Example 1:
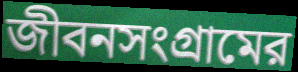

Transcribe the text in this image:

জীবনসংগ্রামের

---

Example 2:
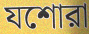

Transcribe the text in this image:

যশোরা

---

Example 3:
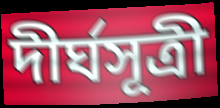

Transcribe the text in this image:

দীর্ঘসূত্রী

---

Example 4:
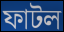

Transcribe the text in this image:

ফাটল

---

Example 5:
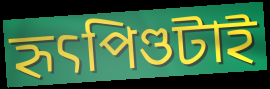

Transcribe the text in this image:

হৃৎপিণ্ডটাই